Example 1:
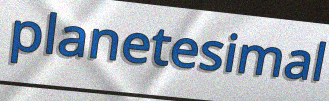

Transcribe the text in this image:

planetesimal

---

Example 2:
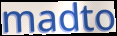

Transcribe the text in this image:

madto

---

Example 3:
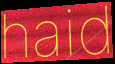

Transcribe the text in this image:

haid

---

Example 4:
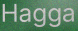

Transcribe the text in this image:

Hagga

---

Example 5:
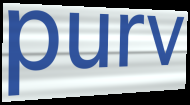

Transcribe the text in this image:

purv